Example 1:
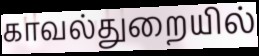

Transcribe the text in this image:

காவல்துறையில்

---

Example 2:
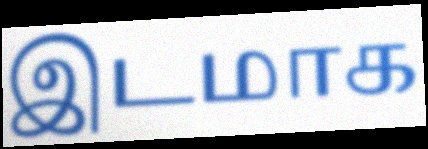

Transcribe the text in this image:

இடமாக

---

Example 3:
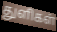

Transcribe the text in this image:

துளிகள்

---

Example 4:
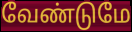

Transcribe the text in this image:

வேண்டுமே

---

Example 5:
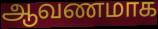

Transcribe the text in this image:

ஆவணமாக